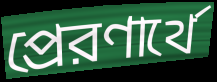
প্রেরণার্থে